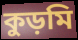
কুড়মি